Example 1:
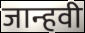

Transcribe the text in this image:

जान्हवी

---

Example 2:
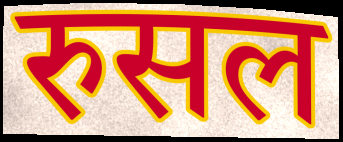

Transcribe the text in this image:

रुसल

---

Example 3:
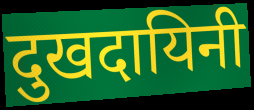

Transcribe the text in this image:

दुखदायिनी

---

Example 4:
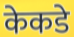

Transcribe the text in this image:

केकडे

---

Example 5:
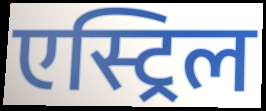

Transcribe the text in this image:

एस्ट्रिल